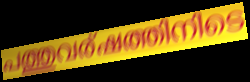
പത്തുവര്ഷത്തിനിടെ